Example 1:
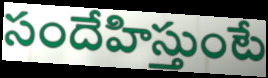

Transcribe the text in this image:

సందేహిస్తుంటే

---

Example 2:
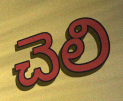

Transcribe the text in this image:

చెలి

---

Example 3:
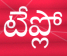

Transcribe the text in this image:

టేప్లో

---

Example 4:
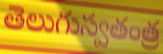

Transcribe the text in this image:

తెలుగుస్వతంత్ర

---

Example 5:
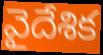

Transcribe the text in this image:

వైదేశిక